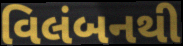
વિલંબનથી